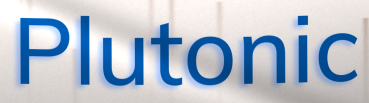
Plutonic